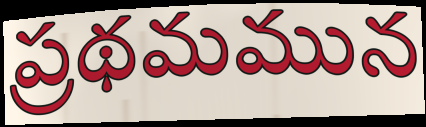
ప్రథమమున